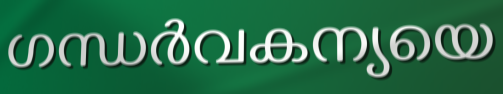
ഗന്ധർവകന്യയെ